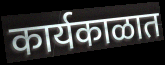
कार्यकाळात